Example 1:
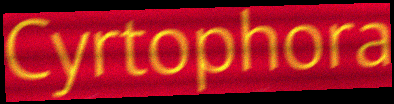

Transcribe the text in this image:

Cyrtophora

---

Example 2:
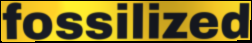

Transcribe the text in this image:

fossilized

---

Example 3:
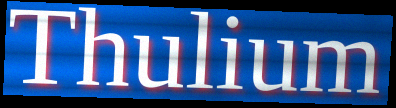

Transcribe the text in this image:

Thulium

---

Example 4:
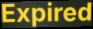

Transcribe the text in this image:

Expired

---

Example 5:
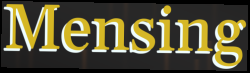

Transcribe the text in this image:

Mensing